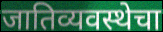
जातिव्यवस्थेचा